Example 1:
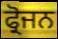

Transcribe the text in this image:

ਫ੍ਰੋਜਨ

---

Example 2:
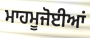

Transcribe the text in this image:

ਮਾਹਮੂਜੋਈਆਂ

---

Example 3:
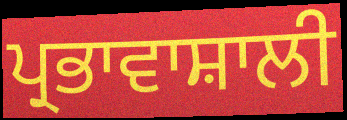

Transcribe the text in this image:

ਪ੍ਰਭਾਵਾਸ਼ਾਲੀ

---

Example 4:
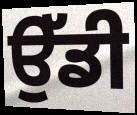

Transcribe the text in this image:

ਉੱਡੀ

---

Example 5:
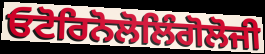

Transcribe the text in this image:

ਓਟੋਰਿਨੋਲੋਲਿੰਗੋਲੋਜੀ